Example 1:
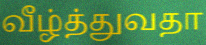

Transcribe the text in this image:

வீழ்த்துவதா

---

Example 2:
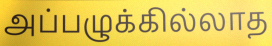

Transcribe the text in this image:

அப்பழுக்கில்லாத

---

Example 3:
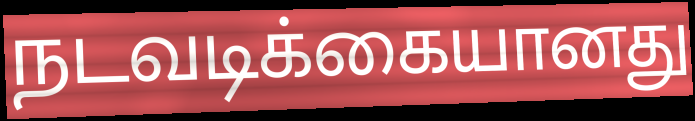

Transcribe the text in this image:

நடவடிக்கையானது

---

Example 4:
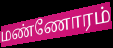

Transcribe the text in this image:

மண்ணோரம்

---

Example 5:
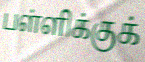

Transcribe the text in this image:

பள்ளிக்குக்